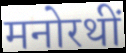
मनोरथीं